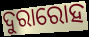
ଦୁରାରୋହ